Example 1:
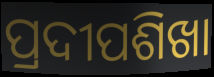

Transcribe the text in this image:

ପ୍ରଦୀପଶିଖା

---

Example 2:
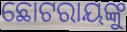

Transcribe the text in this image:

ଛୋଟରାୟଙ୍କୁ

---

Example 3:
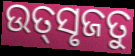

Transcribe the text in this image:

ଉତ୍‌ସୃଜତୁ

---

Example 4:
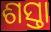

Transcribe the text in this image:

ଶସ୍ତା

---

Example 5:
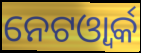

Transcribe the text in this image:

ନେଟଓ୍ବାର୍କ